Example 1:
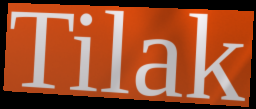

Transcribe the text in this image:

Tilak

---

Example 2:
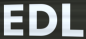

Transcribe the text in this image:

EDL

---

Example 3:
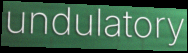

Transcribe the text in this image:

undulatory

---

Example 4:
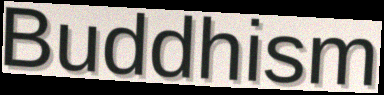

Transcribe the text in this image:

Buddhism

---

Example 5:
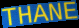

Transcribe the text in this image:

THANE